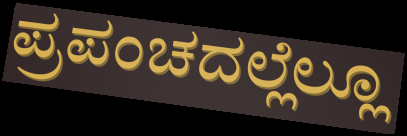
ಪ್ರಪಂಚದಲ್ಲೆಲ್ಲೂ